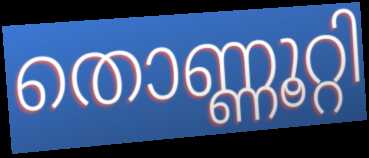
തൊണ്ണൂറ്റി